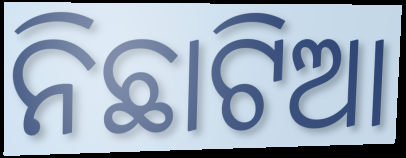
ନିଛାଟିଆ